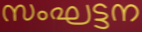
സംഘട്ടന